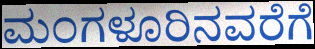
ಮಂಗಳೂರಿನವರೆಗೆ